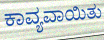
ಕಾವ್ಯವಾಯಿತು